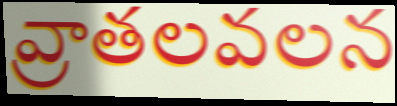
వ్రాతలవలన